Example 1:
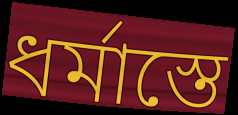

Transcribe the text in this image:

ধর্মাস্তে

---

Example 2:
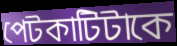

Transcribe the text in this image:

পেটকাটিটাকে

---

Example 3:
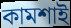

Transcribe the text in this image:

কামশাই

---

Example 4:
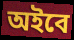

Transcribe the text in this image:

অইবে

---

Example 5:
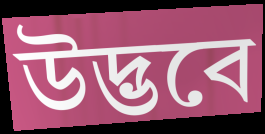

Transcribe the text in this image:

উদ্ভবে